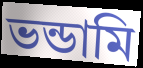
ভন্ডামি